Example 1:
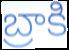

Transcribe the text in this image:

బ్రాకి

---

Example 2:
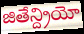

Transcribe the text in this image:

జితేన్ద్రియో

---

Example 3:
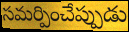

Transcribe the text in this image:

సమర్పించేప్పుడు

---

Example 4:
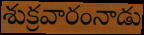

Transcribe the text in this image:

శుక్రవారంనాడు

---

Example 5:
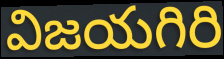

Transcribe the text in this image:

విజయగిరి